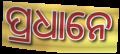
ପ୍ରଧାନେ